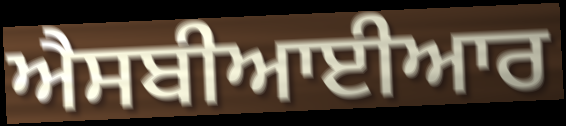
ਐਸਬੀਆਈਆਰ